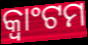
କ୍ୱାଂଟମ